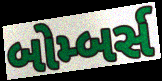
બોમ્બર્સ